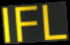
IFL